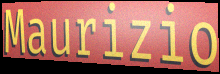
Maurizio